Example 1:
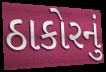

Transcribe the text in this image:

ઠાકોરનું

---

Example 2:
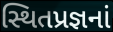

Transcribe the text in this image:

સ્થિતપ્રજ્ઞનાં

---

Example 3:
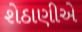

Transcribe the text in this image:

શેઠાણીએ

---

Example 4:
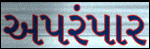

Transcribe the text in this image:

અપરંપાર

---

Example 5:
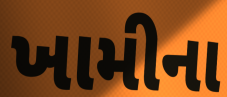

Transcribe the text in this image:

ખામીના